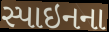
સ્પાઇનના